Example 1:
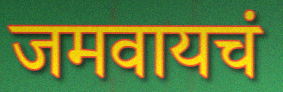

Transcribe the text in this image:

जमवायचं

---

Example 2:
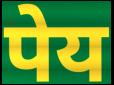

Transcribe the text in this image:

पेय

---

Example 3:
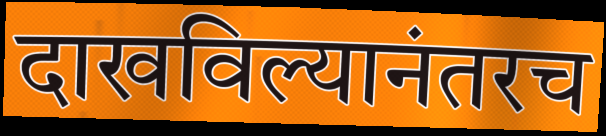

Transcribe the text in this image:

दाखविल्यानंतरच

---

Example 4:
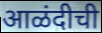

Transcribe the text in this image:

आळंदीची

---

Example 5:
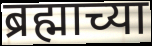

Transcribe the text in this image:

ब्रह्माच्या